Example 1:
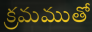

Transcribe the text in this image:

క్రమముతో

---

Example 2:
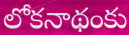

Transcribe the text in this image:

లోకనాథంకు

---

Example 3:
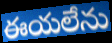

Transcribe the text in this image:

ఈయలేను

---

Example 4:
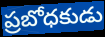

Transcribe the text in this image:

ప్రబోధకుడు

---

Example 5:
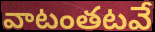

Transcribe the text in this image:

వాటంతటవే